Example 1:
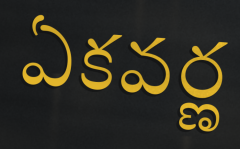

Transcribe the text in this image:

ఏకవర్ణ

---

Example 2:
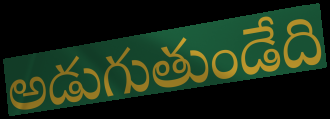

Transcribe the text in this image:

అడుగుతుండేది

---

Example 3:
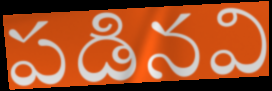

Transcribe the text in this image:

పడినవి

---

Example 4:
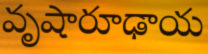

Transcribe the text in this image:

వృషారూఢాయ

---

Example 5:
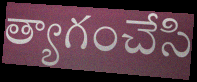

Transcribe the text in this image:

త్యాగంచేసి